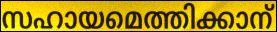
സഹായമെത്തിക്കാന്